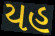
યહ